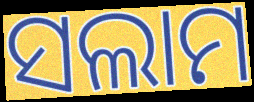
ସଲାମ